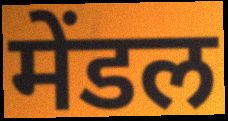
मेंडल